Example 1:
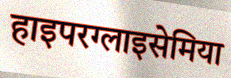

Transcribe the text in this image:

हाइपरग्लाइसेमिया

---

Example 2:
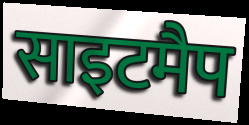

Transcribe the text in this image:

साइटमैप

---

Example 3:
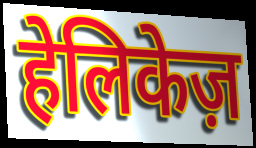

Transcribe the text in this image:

हेलिकेज़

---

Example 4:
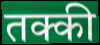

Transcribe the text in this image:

तक्की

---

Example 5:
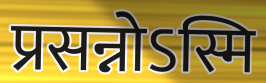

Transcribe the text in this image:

प्रसन्नोऽस्मि